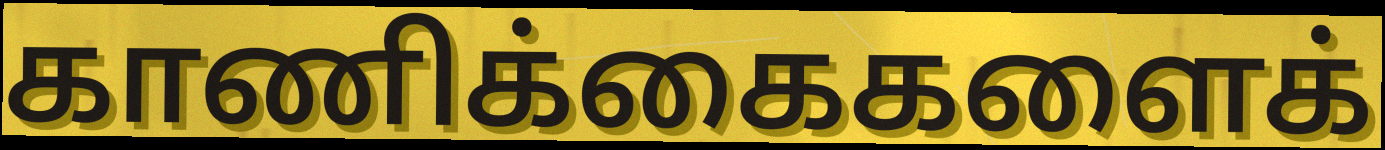
காணிக்கைகளைக்